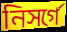
নিসর্গে